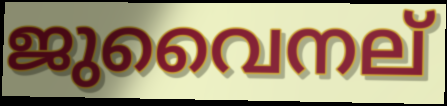
ജുവൈനല്